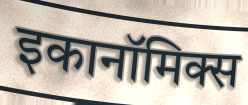
इकानॉमिक्स